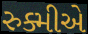
રુક્મીએ